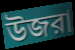
উজরা